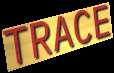
TRACE